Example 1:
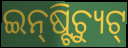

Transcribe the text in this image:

ଇନ୍‌ଷ୍ଟିଚ୍ୟୁଟ୍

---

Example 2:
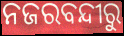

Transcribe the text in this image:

ନଜରବନ୍ଦୀରୁ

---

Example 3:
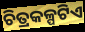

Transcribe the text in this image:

ଚିତ୍ରକଳ୍ପଟିଏ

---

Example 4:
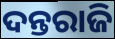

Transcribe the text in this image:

ଦନ୍ତରାଜି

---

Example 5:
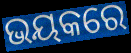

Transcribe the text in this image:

ଭୟକରେ